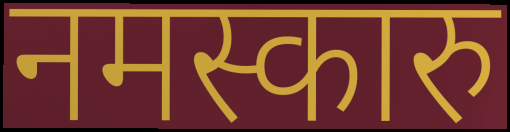
नमस्कारु